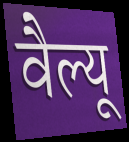
वैल्यू